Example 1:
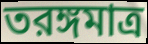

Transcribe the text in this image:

তরঙ্গমাত্র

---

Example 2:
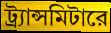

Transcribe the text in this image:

ট্র্যান্সমিটারে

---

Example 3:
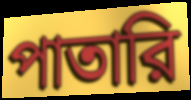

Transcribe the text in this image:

পাতারি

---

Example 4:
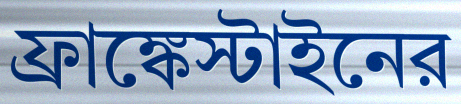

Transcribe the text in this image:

ফ্রাঙ্কেস্টাইনের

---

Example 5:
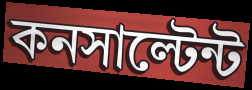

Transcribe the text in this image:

কনসাল্টেন্ট